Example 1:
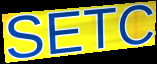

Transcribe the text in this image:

SETC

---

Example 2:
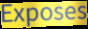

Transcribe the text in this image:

Exposes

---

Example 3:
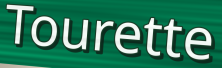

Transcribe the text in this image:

Tourette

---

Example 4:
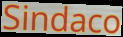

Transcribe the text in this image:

Sindaco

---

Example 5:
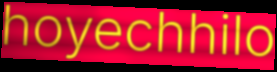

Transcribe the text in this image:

hoyechhilo